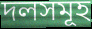
দলসমূহ